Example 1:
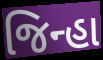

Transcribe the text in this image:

જિન્હા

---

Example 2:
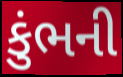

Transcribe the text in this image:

કુંભની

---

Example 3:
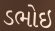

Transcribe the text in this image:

ડભોઇ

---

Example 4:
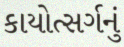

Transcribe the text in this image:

કાયોત્સર્ગનું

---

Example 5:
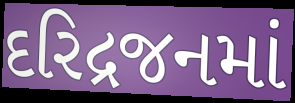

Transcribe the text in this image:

દરિદ્રજનમાં